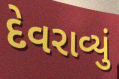
દેવરાવ્યું